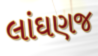
લાંઘણજ